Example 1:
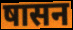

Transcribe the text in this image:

षासन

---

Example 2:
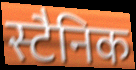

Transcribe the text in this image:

स्टैनिक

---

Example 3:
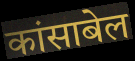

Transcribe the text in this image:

कांसाबेल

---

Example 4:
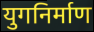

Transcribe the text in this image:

युगनिर्माण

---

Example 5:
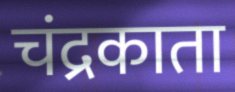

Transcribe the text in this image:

चंद्रकाता